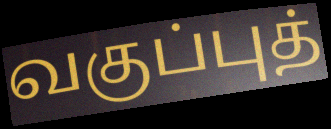
வகுப்புத்